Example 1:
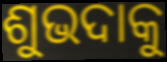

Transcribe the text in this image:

ଶୁଭଦାକୁ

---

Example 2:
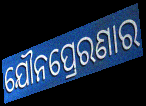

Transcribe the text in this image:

ଯୌନପ୍ରେରଣାର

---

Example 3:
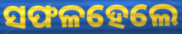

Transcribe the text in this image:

ସଫଳହେଲେ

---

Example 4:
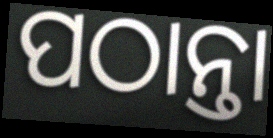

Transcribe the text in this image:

ପଠାନ୍ତା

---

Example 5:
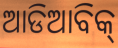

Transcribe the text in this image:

ଆଡିଆବିକ୍